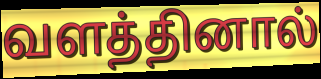
வளத்தினால்